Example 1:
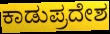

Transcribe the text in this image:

ಕಾಡುಪ್ರದೇಶ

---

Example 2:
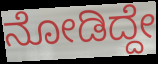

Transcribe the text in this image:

ನೋಡಿದ್ದೇ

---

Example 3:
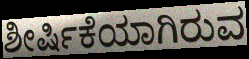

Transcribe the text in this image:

ಶೀರ್ಷಿಕೆಯಾಗಿರುವ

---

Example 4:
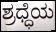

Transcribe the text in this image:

ಶ್ರಧ್ಧೆಯ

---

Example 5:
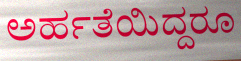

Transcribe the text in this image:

ಅರ್ಹತೆಯಿದ್ದರೂ